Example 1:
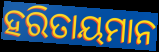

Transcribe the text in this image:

ହରିତାୟମାନ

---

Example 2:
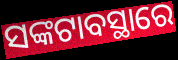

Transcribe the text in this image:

ସଙ୍କଟାବସ୍ଥାରେ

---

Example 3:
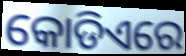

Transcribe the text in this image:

କୋଡିଏରେ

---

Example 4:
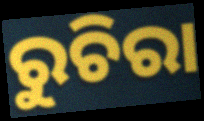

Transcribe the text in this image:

ରୁଚିରା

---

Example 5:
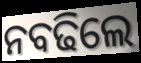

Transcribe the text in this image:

ନବଢିଲେ